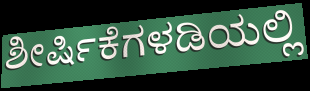
ಶೀರ್ಷಿಕೆಗಳಡಿಯಲ್ಲಿ